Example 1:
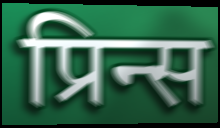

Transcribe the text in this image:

प्रिन्स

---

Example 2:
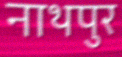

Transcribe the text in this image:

नाथपुर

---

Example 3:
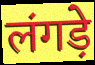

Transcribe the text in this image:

लंगड़े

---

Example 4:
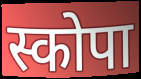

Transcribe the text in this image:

स्कोपा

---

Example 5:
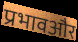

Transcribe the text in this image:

प्रभावऔर